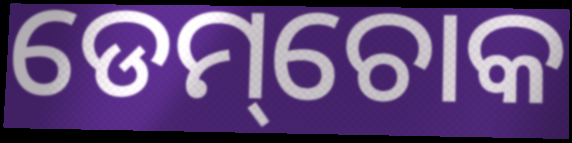
ଡେମ୍‌ଚୋକ